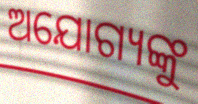
ଅଯୋଗ୍ୟଙ୍କୁ